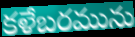
కళేబరమును